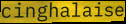
cinghalaise